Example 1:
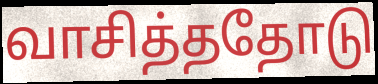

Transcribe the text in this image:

வாசித்ததோடு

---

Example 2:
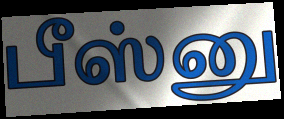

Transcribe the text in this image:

பீஸ்னு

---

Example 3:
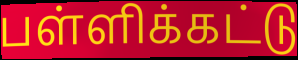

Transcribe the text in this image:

பள்ளிக்கட்டு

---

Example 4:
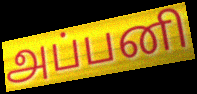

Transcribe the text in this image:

அப்பனி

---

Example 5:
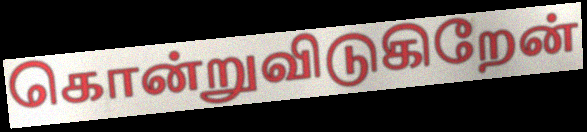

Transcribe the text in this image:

கொன்றுவிடுகிறேன்